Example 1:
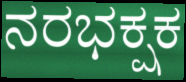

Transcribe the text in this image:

ನರಭಕ್ಷಕ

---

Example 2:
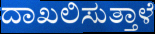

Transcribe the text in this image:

ದಾಖಲಿಸುತ್ತಾಳೆ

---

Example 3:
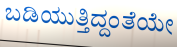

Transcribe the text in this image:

ಬಡಿಯುತ್ತಿದ್ದಂತೆಯೇ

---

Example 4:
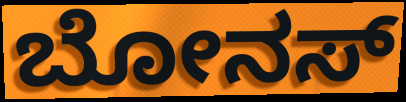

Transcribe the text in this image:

ಬೋನಸ್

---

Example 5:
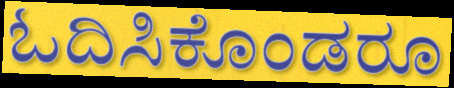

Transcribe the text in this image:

ಓದಿಸಿಕೊಂಡರೂ